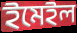
ইমেইল